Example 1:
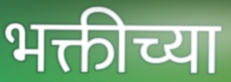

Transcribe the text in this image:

भक्तीच्या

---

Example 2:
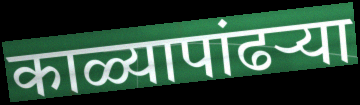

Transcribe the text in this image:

काळ्यापांढऱ्या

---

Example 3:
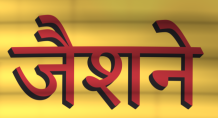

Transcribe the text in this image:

जैशने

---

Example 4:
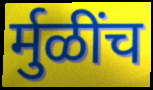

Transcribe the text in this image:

र्मुळींच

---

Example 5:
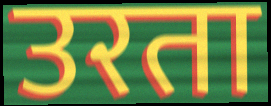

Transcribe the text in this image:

उरता